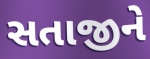
સતાજીને